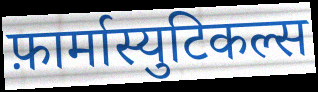
फ़ार्मास्युटिकल्स